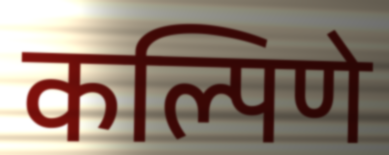
कल्पिणे